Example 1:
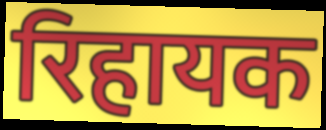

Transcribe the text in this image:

रिहायक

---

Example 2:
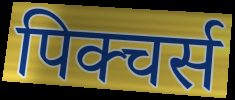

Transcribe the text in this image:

पिक्चर्स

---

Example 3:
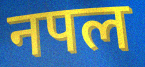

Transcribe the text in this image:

नपल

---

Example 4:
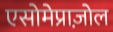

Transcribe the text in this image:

एसोमेप्राज़ोल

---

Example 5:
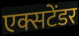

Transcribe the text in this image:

एक्सटेंडर